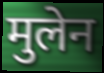
मुलेन